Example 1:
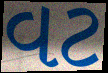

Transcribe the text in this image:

વટ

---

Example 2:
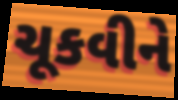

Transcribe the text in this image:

ચૂકવીને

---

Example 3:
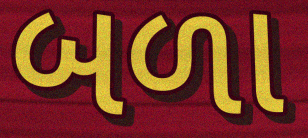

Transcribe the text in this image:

બળા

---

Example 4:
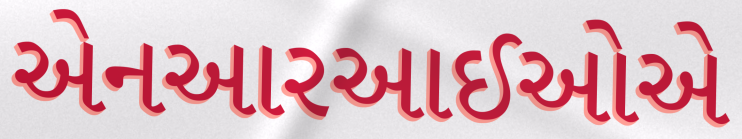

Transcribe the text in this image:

એનઆરઆઈઓએ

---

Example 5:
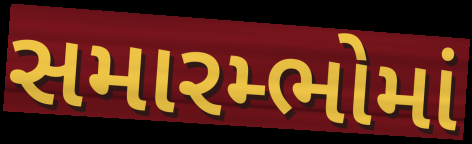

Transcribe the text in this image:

સમારમ્ભોમાં